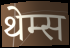
थेम्स